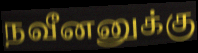
நவீனனுக்கு